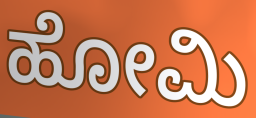
ಹೋಮಿ